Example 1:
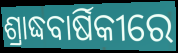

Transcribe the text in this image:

ଶ୍ରାଦ୍ଧବାର୍ଷିକୀରେ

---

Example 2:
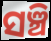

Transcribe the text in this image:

ସଞ୍ଚି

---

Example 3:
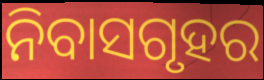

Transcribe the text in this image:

ନିବାସଗୃହର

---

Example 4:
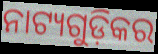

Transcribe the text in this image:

ନାଟ୍ୟଗୁଡ଼ିକର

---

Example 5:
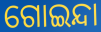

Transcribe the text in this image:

ଗୋଇନ୍ଦା